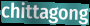
chittagong